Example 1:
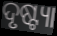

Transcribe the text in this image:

ଦୃଷ୍ଟ୍ୟା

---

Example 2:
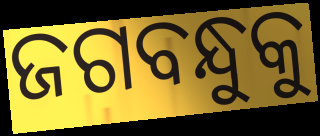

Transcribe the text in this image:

ଜଗବନ୍ଧୁକୁ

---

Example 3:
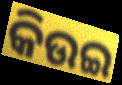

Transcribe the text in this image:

କିଉଇ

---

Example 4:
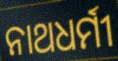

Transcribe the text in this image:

ନାଥଧର୍ମୀ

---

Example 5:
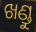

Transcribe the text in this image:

ଖଣ୍ଡୁ